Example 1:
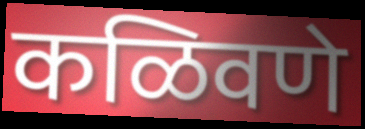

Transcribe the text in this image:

कळिवणे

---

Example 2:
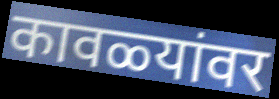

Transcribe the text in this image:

कावळ्यांवर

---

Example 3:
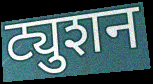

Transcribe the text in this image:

ट्युशन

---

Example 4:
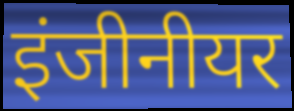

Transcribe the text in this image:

इंजीनीयर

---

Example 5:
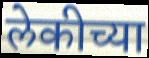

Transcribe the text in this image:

लेकीच्या